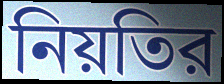
নিয়তির